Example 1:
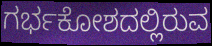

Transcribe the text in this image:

ಗರ್ಭಕೋಶದಲ್ಲಿರುವ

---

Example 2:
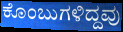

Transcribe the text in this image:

ಕೊಂಬುಗಳಿದ್ದವು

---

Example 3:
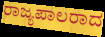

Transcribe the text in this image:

ರಾಜ್ಯಪಾಲರಾದ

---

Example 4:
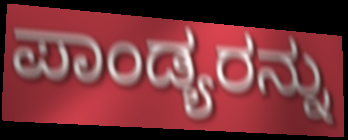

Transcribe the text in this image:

ಪಾಂಡ್ಯರನ್ನು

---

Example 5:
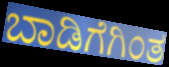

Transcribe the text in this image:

ಬಾಡಿಗೆಗಿಂತ